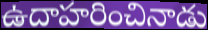
ఉదాహరించినాడు